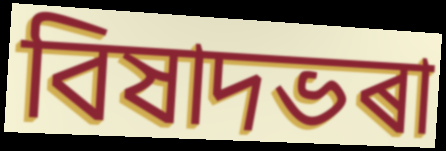
বিষাদভৰা